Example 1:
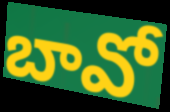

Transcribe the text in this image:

బావో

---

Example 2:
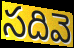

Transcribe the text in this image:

సదివె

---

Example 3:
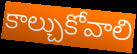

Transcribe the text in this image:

కాల్చుకోవాలి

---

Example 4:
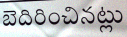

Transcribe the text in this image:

బెదిరించినట్లు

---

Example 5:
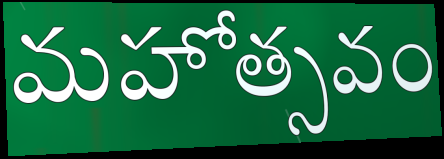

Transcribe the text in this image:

మహోత్సవం